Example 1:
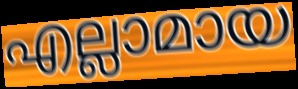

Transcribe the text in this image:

എല്ലാമായ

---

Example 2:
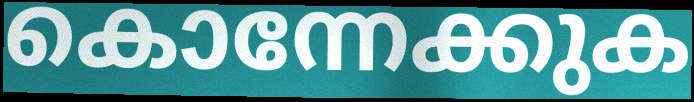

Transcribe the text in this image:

കൊന്നേക്കുക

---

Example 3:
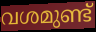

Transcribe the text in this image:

വശമുണ്ട്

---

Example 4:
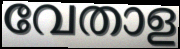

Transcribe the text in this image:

വേതാള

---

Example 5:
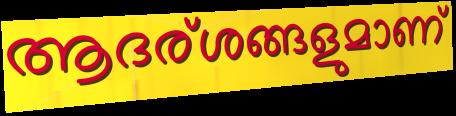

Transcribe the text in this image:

ആദര്ശങ്ങളുമാണ്